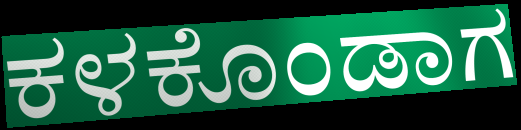
ಕಳಕೊಂಡಾಗ